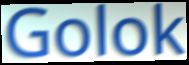
Golok